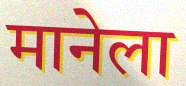
मानेला